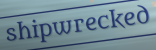
shipwrecked